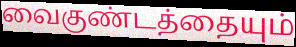
வைகுண்டத்தையும்